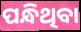
ପନ୍ଧିଥିବା